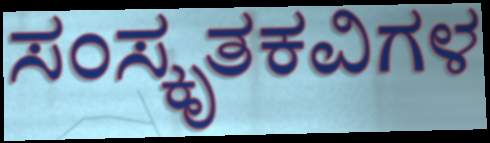
ಸಂಸ್ಕೃತಕವಿಗಳ